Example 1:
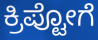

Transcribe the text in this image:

ಕ್ರಿಪ್ಟೋಗೆ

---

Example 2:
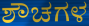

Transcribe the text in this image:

ಶೌಚಗಳ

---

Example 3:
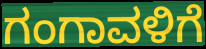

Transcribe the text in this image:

ಗಂಗಾವಳಿಗೆ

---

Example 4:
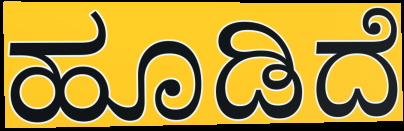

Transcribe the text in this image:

ಹೂಡಿದೆ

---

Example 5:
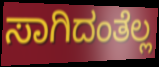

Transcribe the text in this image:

ಸಾಗಿದಂತೆಲ್ಲ